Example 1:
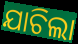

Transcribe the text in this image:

ଯାଚିଲା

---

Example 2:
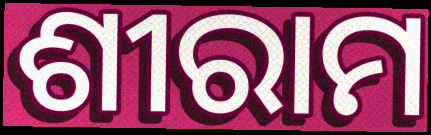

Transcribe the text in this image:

ଶୀରାମ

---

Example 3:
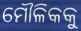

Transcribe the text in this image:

ମୌଳିକକୁ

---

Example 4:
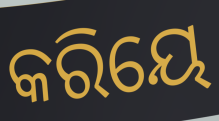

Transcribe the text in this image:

କରିୟେ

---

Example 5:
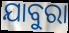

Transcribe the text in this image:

ଯାବୁରା